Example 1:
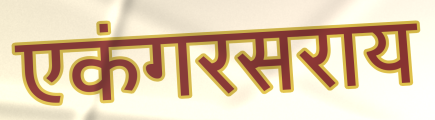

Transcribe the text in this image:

एकंगरसराय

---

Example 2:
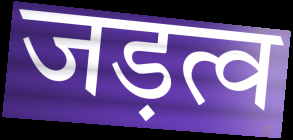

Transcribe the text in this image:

जड़त्व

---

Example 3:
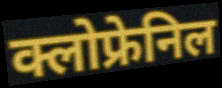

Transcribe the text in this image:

क्लोफ्रेनिल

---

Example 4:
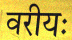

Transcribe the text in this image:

वरीयः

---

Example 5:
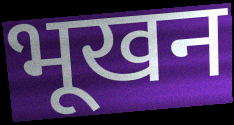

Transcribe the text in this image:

भूखन